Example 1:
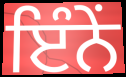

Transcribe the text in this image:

ਇੰਨੇਂ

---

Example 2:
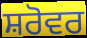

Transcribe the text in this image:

ਸ਼ਰੋਵਰ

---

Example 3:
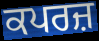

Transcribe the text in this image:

ਕਪਰਜ਼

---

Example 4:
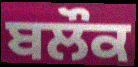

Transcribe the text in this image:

ਬਲੌਕ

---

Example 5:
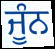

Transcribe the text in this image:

ਜੂੰਨ